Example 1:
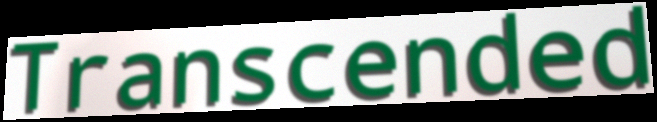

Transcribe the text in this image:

Transcended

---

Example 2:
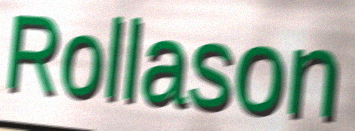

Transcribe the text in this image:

Rollason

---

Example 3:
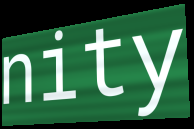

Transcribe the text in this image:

nity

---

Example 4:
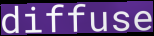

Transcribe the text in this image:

diffuse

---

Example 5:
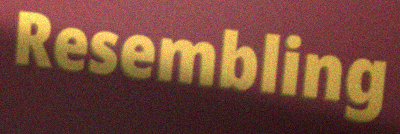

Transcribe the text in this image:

Resembling